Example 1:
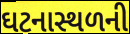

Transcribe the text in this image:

ઘટનાસ્થળની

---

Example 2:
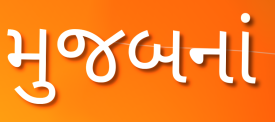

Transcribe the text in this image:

મુજબનાં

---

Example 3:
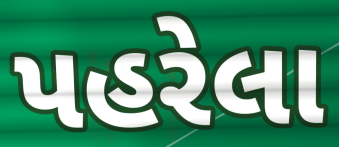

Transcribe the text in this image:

પહરેલા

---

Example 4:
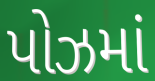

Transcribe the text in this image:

પોઝમાં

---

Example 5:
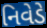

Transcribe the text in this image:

નિવેડે